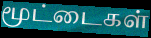
மூட்டைகள்